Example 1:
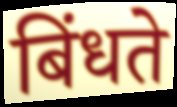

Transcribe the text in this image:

बिंधते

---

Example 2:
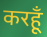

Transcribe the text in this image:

करहूँ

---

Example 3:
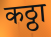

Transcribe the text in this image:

कठ्ठा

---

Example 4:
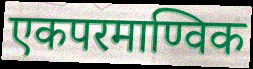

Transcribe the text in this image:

एकपरमाण्विक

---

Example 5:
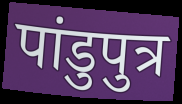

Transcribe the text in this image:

पांडुपुत्र